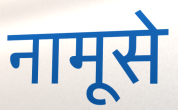
नामूसे